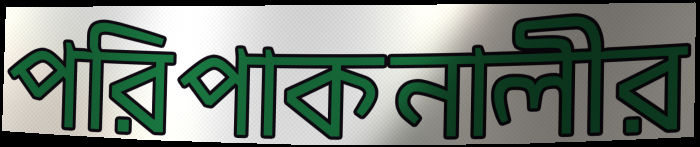
পরিপাকনালীর